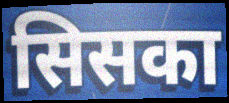
सिसका